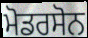
ਮੋਡਰਸੋਨ